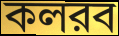
কলরব